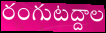
రంగుటద్దాల